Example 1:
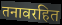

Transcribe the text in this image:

तनावरहित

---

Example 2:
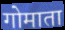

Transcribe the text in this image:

गोमाता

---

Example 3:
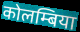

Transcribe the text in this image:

कोलम्बिया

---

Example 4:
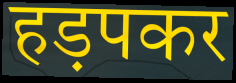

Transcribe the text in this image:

हड़पकर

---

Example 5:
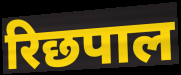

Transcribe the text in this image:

रिछपाल